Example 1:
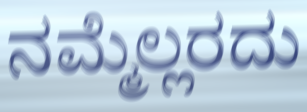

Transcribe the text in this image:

ನಮ್ಮೆಲ್ಲರದು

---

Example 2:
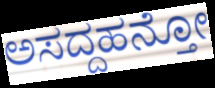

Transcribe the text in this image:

ಅಸದ್ದಹನ್ತೋ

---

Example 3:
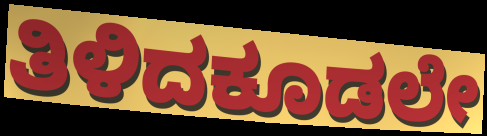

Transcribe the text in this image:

ತಿಳಿದಕೂಡಲೇ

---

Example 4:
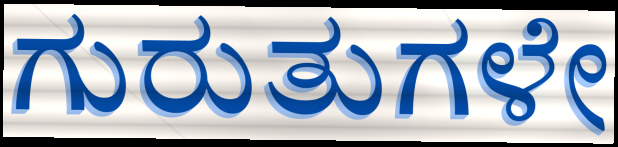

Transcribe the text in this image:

ಗುರುತುಗಳೇ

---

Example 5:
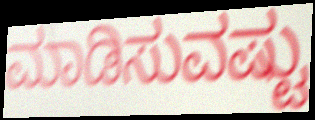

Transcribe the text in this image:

ಮಾಡಿಸುವಷ್ಟು